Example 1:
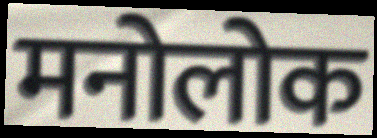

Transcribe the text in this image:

मनोलोक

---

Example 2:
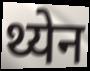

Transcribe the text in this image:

थ्येन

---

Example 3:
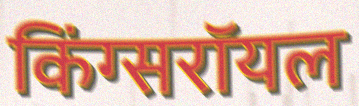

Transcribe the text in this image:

किंग्सरॉयल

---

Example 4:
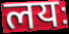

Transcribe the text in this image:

लयः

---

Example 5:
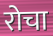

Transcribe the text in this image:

रोचा